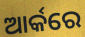
ଆର୍କରେ